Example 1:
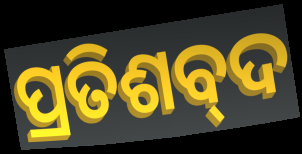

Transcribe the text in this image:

ପ୍ରତିଶବ୍‌ଦ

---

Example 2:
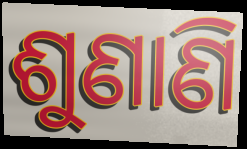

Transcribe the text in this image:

ଶୁଣାଣି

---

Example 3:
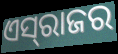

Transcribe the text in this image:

ଏସ୍‍ରାଜର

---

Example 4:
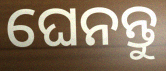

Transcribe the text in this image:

ଘେନନ୍ତୁ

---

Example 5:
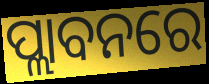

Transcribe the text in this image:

ପ୍ଲାବନରେ